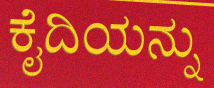
ಕೈದಿಯನ್ನು